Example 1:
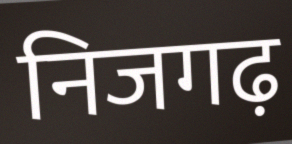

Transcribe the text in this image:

निजगढ़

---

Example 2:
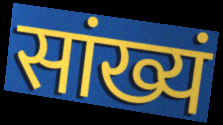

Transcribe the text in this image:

सांख्यं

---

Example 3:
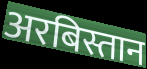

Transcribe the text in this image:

अरबिस्तान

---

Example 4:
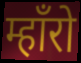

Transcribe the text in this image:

म्हाँरो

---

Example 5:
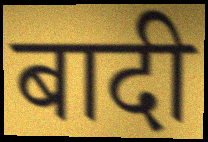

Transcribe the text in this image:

बादी